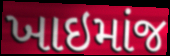
ખાઇમાંજ